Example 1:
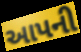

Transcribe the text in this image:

આપની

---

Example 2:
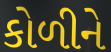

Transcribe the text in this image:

કોળીને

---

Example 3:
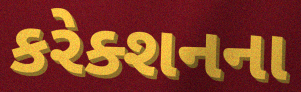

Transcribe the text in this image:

કરેક્શનના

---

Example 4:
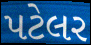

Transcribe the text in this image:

પટેલર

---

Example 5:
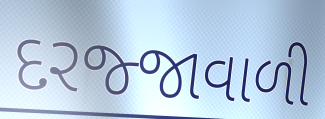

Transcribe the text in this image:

દરજ્જાવાળી